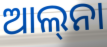
ଆଲ୍‍ନା